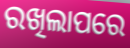
ରଖିଲାପରେ